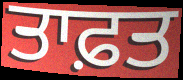
ਤਾਫ਼ਤ